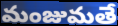
మంజుమతే